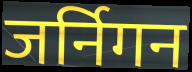
जर्निगन